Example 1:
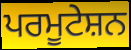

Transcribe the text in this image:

ਪਰਮੂਟੇਸ਼ਨ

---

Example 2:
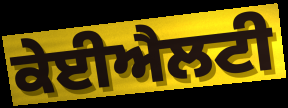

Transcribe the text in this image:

ਕੇਈਐਲਟੀ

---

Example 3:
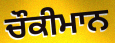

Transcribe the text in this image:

ਚੌਕੀਮਾਨ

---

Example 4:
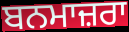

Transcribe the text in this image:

ਬਨਮਾਜ਼ਰਾ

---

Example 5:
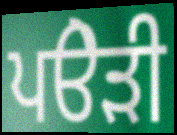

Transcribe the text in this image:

ਪੳੇੜੀ